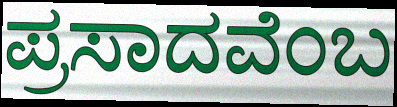
ಪ್ರಸಾದವೆಂಬ